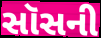
સૉસની